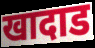
खादाड